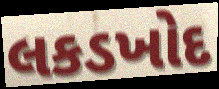
લકડખોદ